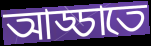
আড্ডাতে